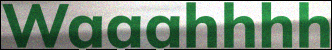
Waaahhhh